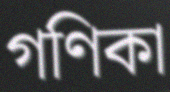
গণিকা